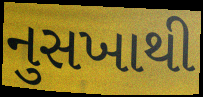
નુસખાથી